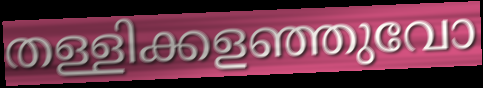
തള്ളിക്കളഞ്ഞുവോ